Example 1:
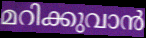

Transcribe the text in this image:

മറിക്കുവാൻ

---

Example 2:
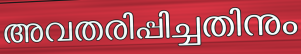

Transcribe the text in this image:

അവതരിപ്പിച്ചതിനും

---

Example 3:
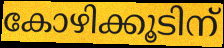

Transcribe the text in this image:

കോഴിക്കൂടിന്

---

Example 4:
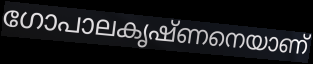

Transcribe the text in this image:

ഗോപാലകൃഷ്ണനെയാണ്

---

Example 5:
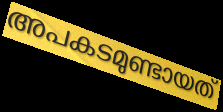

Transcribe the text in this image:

അപകടമുണ്ടായത്